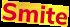
Smite